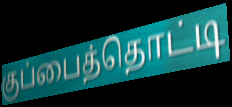
குப்பைத்தொட்டி